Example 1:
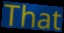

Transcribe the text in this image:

That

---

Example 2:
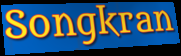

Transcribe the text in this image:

Songkran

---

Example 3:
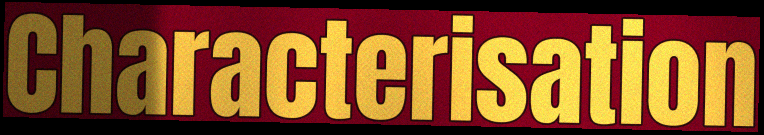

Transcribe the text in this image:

Characterisation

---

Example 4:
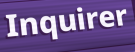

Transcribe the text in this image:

Inquirer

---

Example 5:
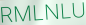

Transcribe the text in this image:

RMLNLU